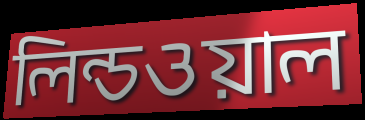
লিন্ডওয়াল